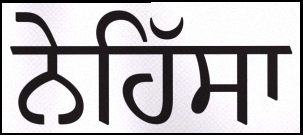
ਨੇਹਿੱਸਾ